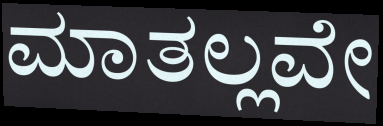
ಮಾತಲ್ಲವೇ